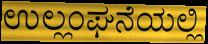
ಉಲ್ಲಂಘನೆಯಲ್ಲಿ